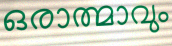
ഒരാത്മാവും